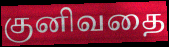
குனிவதை